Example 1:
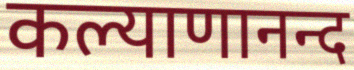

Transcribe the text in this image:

कल्याणानन्द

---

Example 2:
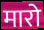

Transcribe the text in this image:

मारो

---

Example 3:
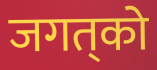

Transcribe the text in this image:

जगत्‌को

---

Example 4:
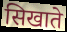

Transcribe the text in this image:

सिखाते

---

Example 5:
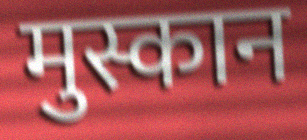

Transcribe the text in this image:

मुस्कान